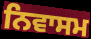
ਨਿਵਾਸਮ